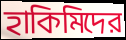
হাকিমিদের